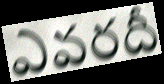
ఎవరదీ